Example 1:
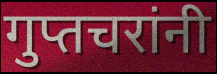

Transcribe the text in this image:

गुप्तचरांनी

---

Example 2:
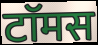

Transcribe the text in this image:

टॉमस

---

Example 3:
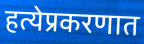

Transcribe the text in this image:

हत्येप्रकरणात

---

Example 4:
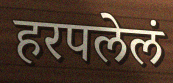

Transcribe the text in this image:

हरपलेलं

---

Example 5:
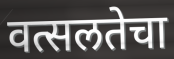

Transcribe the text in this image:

वत्सलतेचा